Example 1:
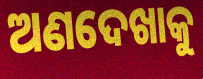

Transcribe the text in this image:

ଅଣଦେଖାକୁ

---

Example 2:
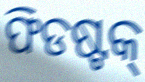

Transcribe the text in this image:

ଫିଡଷ୍ଟକ୍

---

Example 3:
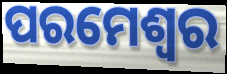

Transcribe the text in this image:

ପରମେଶ୍ବର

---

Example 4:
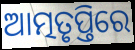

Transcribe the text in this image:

ଆତ୍ମତୃପ୍ତିରେ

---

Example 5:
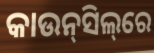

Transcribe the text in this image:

କାଉନ୍‌ସିଲ୍‌ରେ